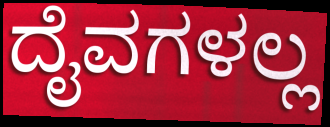
ದೈವಗಳಲ್ಲ